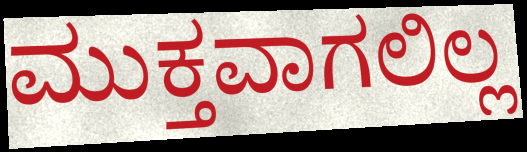
ಮುಕ್ತವಾಗಲಿಲ್ಲ